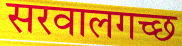
सरवालगच्छ